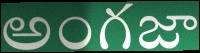
అంగజా